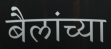
बैलांच्या